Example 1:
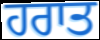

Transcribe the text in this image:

ਹਰਾਤ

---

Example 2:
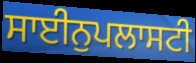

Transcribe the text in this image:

ਸਾਈਨੁਪਲਾਸਟੀ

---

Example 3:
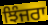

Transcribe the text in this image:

ਝਿੰਜਰਾ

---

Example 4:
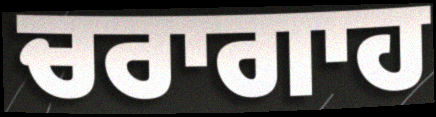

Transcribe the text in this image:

ਚਰਾਗਾਹ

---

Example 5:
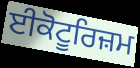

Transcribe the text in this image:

ਈਕੋਟੂਰਿਜ਼ਮ